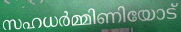
സഹധർമ്മിണിയോട്